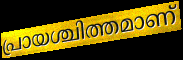
പ്രായശ്ചിത്തമാണ്